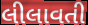
લીલાવતી